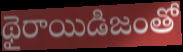
థైరాయిడిజంతో